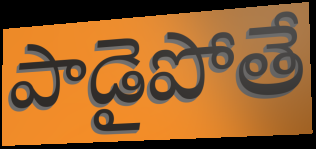
పాడైపోతే